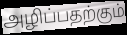
அழிப்பதற்கும்